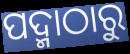
ପଦ୍ମାଠାରୁ